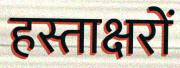
हस्ताक्षरों